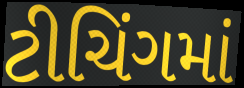
ટીચિંગમાં